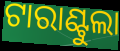
ଟାରାଣ୍ଟୁଲା